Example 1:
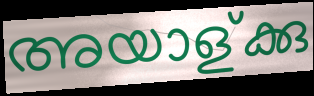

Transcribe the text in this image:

അയാള്ക്കു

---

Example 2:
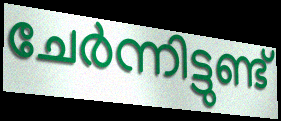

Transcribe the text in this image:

ചേർന്നിട്ടുണ്ട്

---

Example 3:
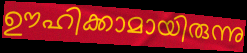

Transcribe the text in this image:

ഊഹിക്കാമായിരുന്നു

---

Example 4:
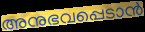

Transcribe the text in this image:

അനുഭവപ്പെടാൻ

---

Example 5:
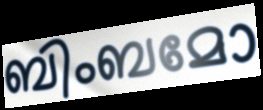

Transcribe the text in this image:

ബിംബമോ